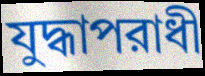
যুদ্ধাপরাধী